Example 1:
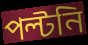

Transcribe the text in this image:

পল্টনি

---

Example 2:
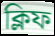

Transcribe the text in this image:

ক্লিফ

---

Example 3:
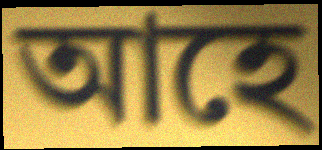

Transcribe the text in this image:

আহে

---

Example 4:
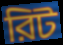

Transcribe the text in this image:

রিট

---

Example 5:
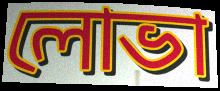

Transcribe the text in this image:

লোভা